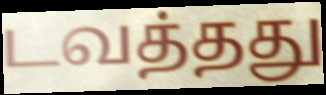
டவத்தது